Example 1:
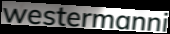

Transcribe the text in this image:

westermanni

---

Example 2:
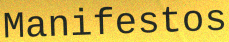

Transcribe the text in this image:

Manifestos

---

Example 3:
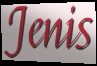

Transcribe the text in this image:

Jenis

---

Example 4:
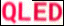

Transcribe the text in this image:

QLED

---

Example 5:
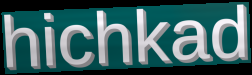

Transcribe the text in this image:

hichkad